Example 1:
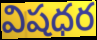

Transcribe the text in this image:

విషధర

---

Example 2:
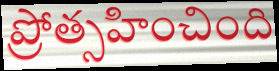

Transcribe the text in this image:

ప్రోత్సహించింది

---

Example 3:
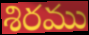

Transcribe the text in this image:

శిరము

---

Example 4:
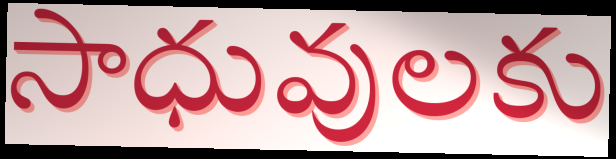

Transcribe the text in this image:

సాధువులకు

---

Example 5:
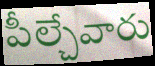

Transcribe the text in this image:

పీల్చేవారు